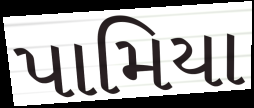
પામિયા